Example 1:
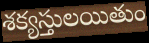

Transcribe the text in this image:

శక్యస్తులయితుం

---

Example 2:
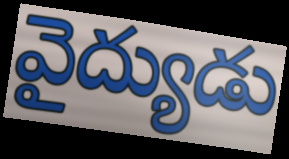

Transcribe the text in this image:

వైద్యుడు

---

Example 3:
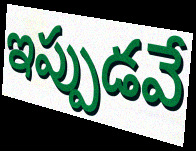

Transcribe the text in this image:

ఇప్పుడవే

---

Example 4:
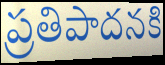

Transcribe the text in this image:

ప్రతిపాదనకి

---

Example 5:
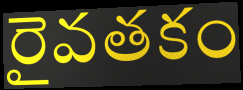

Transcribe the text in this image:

రైవతకం